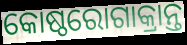
କୋଷ୍ଠରୋଗାକ୍ରାନ୍ତ